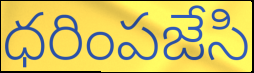
ధరింపజేసి